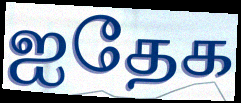
ஐதேக